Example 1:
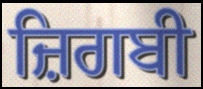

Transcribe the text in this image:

ਜ਼ਿਗਬੀ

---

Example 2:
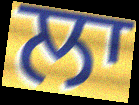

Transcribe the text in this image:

ਲਾ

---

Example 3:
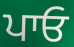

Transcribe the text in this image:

ਪਾਓ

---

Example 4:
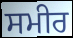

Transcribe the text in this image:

ਸਮੀਰ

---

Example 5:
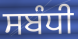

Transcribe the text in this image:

ਸਬੰਧੀ